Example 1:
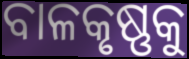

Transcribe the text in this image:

ବାଳକୃଷ୍ଣକୁ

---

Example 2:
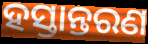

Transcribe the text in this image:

ହସ୍ତାନ୍ତରଣ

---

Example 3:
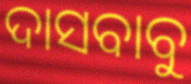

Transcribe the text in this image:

ଦାସବାବୁ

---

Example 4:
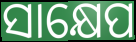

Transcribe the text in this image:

ସାକ୍ଷେପ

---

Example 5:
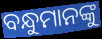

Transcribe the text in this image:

ବନ୍ଧୁମାନଙ୍କୁ